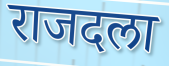
राजदला